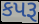
કપરૂ